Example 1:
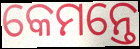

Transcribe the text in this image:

କେମନ୍ତେ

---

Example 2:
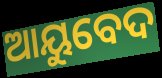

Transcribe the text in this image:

ଆୟୁବେଦ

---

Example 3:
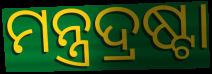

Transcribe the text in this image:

ମନ୍ତ୍ରଦ୍ରଷ୍ଟା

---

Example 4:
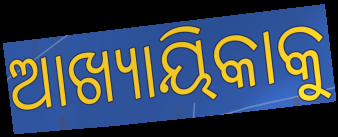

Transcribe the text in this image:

ଆଖ୍ୟାୟିକାକୁ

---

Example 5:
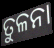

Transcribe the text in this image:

ତୁଳନା